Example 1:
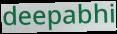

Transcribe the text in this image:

deepabhi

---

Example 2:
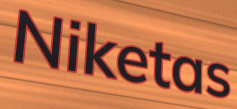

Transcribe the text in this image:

Niketas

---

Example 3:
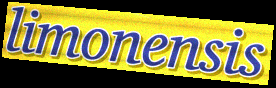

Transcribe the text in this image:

limonensis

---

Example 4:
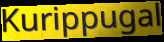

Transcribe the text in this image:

Kurippugal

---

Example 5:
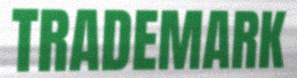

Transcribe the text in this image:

TRADEMARK